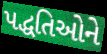
પદ્ધતિઓને